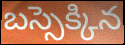
బస్సెక్కిన